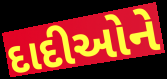
દાદીઓને